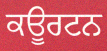
ਕਊਰਟਨ